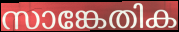
സാങ്കേതിക